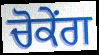
ਚੋਕੇਂਗ